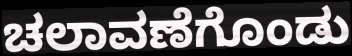
ಚಲಾವಣೆಗೊಂಡು